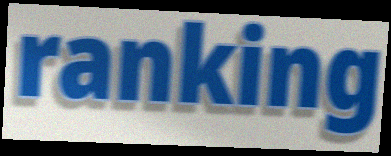
ranking